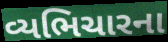
વ્યભિચારના